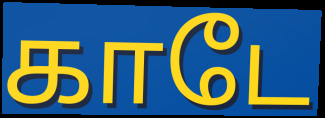
காடே